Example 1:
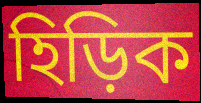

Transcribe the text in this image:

হিড়িক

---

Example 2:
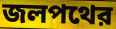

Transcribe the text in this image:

জলপথের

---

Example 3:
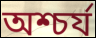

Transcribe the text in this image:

অশ্চর্য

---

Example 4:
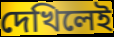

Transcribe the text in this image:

দেখিলেই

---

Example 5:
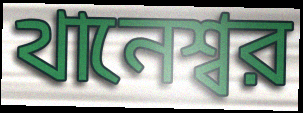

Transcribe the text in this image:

থানেশ্বর